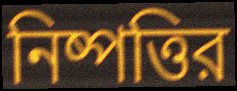
নিষ্পত্তির